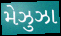
મેઝુઝા